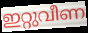
ഇറ്റുവീണ